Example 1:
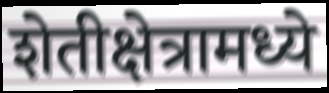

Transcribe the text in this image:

शेतीक्षेत्रामध्ये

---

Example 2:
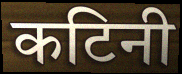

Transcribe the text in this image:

कटिनी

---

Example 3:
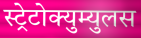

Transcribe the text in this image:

स्ट्रेटोक्युम्युलस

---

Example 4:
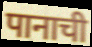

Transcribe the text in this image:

पानाची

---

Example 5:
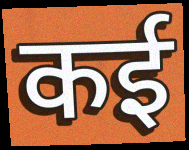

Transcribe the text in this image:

कई